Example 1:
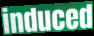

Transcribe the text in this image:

induced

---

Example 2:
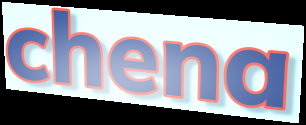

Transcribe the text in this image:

chena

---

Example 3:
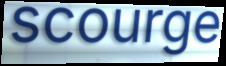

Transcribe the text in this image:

scourge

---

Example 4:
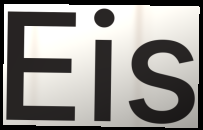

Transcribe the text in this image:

Eis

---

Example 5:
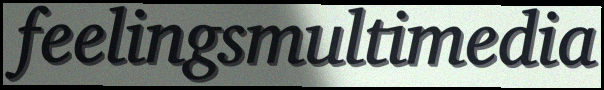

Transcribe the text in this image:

feelingsmultimedia